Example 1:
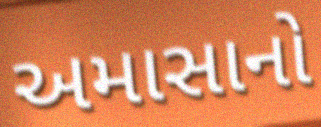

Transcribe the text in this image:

અમાસાનો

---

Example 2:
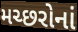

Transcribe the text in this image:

મચ્છરોનાં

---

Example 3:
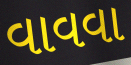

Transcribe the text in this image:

વાવવા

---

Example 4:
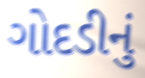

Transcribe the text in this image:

ગોદડીનું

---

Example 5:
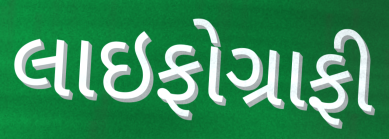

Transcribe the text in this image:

લાઇફોગ્રાફી